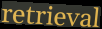
retrieval